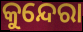
କୁନ୍ଦେରା